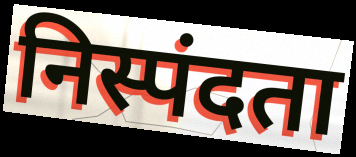
निस्पंदता